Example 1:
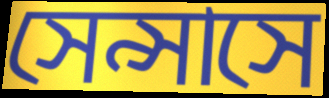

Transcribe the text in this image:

সেন্সাসে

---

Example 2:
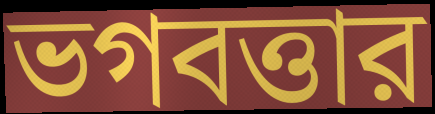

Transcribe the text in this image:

ভগবত্তার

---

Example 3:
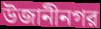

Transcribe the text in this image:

উজানীনগর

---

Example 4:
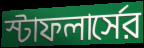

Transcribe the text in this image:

স্টাফলার্সের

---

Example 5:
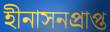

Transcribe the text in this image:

হীনাসনপ্রাপ্ত